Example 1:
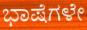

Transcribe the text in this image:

ಭಾಷೆಗಳೇ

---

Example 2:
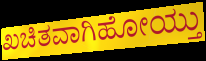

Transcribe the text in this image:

ಖಚಿತವಾಗಿಹೋಯ್ತು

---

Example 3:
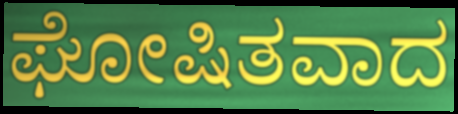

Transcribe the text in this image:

ಘೋಷಿತವಾದ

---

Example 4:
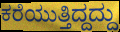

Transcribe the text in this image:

ಕರೆಯುತ್ತಿದ್ದದ್ದು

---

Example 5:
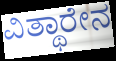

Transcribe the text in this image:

ವಿತ್ಥಾರೇನ